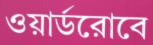
ওয়ার্ডরোবে